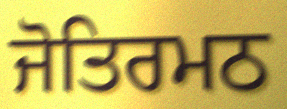
ਜੋਤਿਰਮਠ